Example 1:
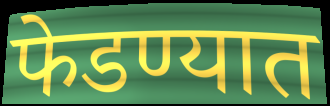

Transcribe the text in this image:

फेडण्यात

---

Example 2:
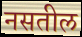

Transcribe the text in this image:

नसतील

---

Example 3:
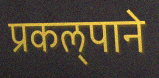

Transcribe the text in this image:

प्रकल्पाने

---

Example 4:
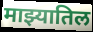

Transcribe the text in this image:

माझ्यातिल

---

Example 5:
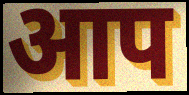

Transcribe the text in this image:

आप